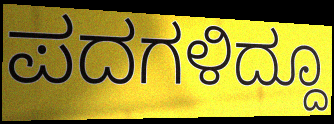
ಪದಗಳಿದ್ದೂ